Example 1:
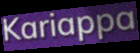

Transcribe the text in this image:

Kariappa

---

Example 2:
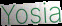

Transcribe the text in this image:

Yosia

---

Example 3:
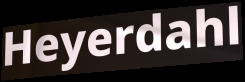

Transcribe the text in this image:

Heyerdahl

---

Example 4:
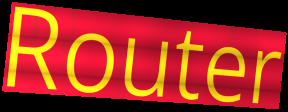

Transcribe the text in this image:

Router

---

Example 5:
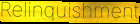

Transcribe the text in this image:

Relinquishment